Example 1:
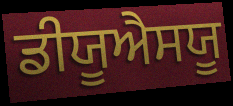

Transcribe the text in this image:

ਡੀਯੂਐਸਯੂ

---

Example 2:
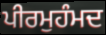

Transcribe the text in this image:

ਪੀਰਮੁਹੰਮਦ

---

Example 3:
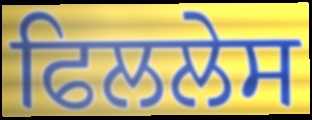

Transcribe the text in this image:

ਫਿਲਲੇਸ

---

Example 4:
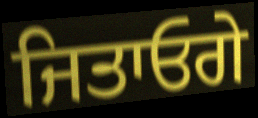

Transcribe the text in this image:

ਜਿਤਾਓਗੇ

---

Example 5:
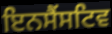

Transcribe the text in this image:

ਇਨਸੈਂਸਟਿਵ